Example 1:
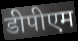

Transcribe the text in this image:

डीपीएम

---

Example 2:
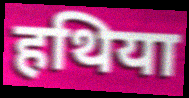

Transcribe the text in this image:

हथिया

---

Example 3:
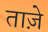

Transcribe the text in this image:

ताज़े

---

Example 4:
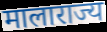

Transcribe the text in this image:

मालाराज्य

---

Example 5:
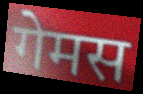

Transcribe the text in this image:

गेमस